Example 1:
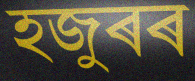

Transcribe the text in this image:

হজুৰৰ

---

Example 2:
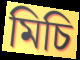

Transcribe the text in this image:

মিচি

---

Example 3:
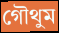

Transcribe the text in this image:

গৌথুম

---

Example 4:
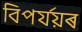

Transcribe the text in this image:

বিপৰ্যয়ৰ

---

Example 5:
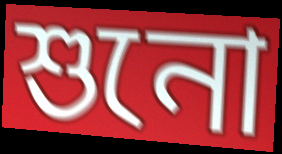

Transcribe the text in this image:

শুনো